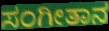
ಸಂಗೀತಾನ